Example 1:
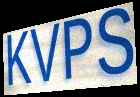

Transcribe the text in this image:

KVPS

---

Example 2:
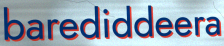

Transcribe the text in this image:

barediddeera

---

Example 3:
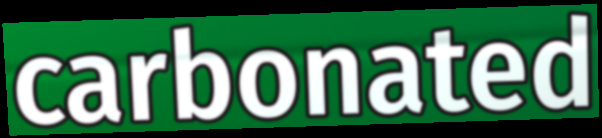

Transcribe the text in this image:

carbonated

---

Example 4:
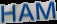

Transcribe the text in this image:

HAM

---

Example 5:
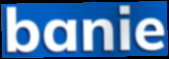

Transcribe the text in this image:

banie